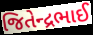
જિતેન્દ્રભાઈ